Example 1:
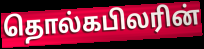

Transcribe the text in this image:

தொல்கபிலரின்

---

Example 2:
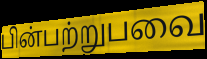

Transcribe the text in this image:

பின்பற்றுபவை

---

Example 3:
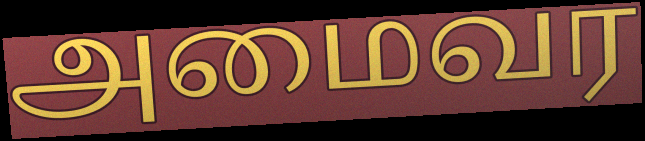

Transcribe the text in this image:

அமைவர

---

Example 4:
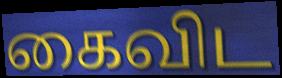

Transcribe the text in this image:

கைவிட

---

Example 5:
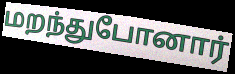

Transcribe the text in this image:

மறந்துபோனார்